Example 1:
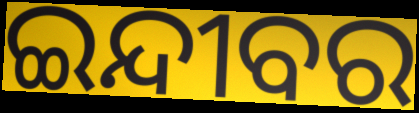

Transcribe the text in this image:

ଇନ୍ଦୀବର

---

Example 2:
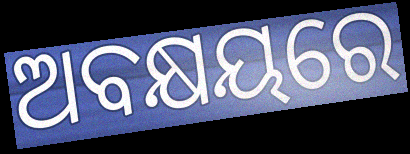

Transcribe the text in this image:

ଅବକ୍ଷୟରେ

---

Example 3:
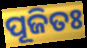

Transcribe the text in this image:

ପୂଜିତଃ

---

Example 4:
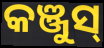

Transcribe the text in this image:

କଞ୍ଜୁସ୍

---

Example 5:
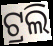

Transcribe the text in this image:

ଟ୍ରଲି